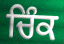
ਚਿੰਕ